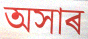
অসাৰ